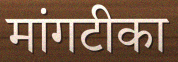
मांगटीका